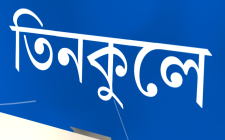
তিনকুলে